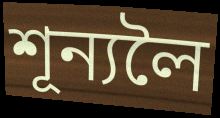
শূন্যলৈ